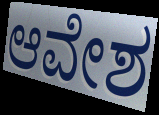
ಆವೇಶ